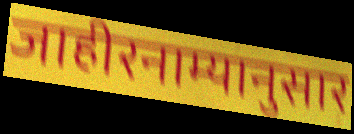
जाहीरनाम्यानुसार